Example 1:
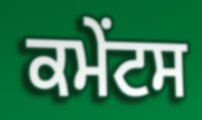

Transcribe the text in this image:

ਕਮੇੰਟਸ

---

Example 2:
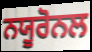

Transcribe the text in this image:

ਨਯੂਰੋਨਲ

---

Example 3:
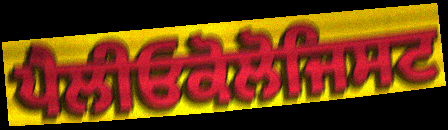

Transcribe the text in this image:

ਪੈਲੀਓਕੋਲੋਜਿਸਟ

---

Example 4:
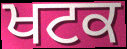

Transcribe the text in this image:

ਖਟਕ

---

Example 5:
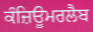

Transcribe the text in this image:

ਕੰਜ਼ਿਊਮਰਲੈਬ